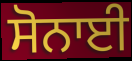
ਸੋਨਾਈ